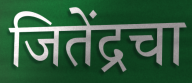
जितेंद्रचा